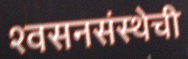
श्वसनसंस्थेची